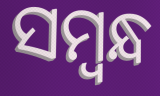
ସମ୍ୱନ୍ଧ